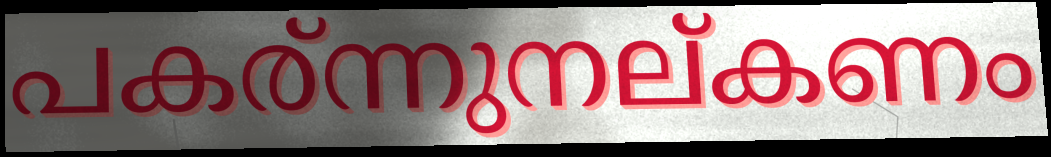
പകര്ന്നുനല്കണം